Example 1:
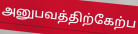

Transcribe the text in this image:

அனுபவத்திற்கேற்ப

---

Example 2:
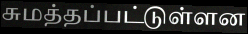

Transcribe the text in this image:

சுமத்தப்பட்டுள்ளன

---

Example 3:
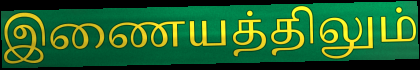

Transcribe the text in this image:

இணையத்திலும்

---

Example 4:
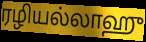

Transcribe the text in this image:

ரழியல்லாஹு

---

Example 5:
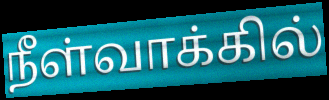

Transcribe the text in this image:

நீள்வாக்கில்